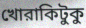
খোরাকিটুকু